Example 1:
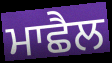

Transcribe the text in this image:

ਮਾਛੈਲ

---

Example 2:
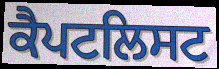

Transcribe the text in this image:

ਕੈਪਟਲਿਸਟ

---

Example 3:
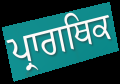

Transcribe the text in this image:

ਪ੍ਰਾਗਥਿਕ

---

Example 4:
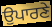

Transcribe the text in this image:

ਉਪਾਰਣੇ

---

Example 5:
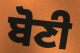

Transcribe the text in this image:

ਬੋਣੀ